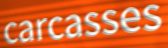
carcasses